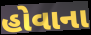
હોવાના